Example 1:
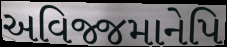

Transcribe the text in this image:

અવિજ્જમાનેપિ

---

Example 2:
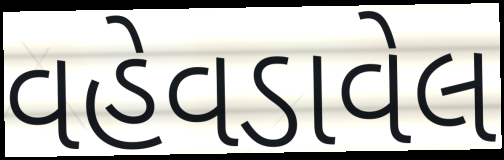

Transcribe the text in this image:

વહેવડાવેલ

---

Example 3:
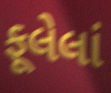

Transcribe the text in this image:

ફૂલેલાં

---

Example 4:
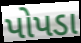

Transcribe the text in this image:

પોપડા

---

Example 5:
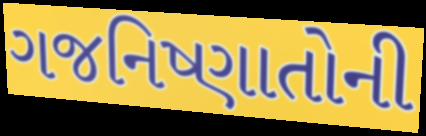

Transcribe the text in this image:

ગજનિષ્ણાતોની